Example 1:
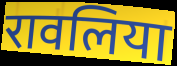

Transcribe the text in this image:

रावलिया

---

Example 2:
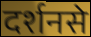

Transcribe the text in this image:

दर्शनसे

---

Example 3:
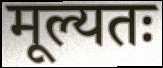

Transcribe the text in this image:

मूल्यतः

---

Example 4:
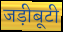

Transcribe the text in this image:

जड़ीबूटी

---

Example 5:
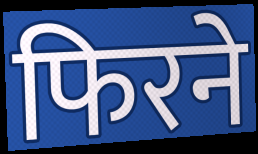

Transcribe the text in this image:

फिरने